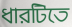
ধারটিতে